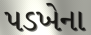
પડખેના